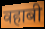
वहाबी